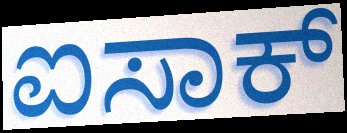
ಐಸಾಕ್